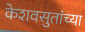
केशवसुतांच्या